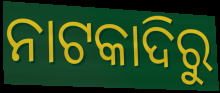
ନାଟକାଦିରୁ